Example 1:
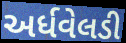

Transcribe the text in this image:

અર્ધવેલડી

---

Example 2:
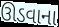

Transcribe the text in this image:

ઊડવાના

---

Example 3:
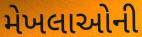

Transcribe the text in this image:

મેખલાઓની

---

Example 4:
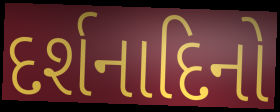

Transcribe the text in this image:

દર્શનાદિનો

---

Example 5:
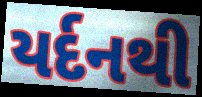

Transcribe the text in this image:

યર્દનથી